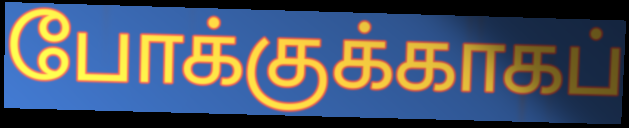
போக்குக்காகப்